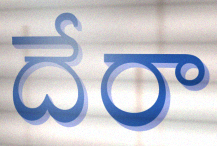
దేరా